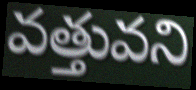
వత్తువని